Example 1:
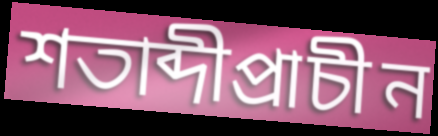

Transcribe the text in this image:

শতাব্দীপ্রাচীন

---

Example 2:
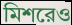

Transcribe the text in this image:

মিশরেও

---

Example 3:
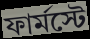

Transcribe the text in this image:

ফার্মস্টে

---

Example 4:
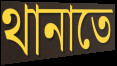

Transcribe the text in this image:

থানাতে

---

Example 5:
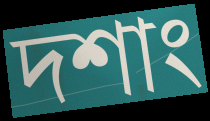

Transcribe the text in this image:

দশাং